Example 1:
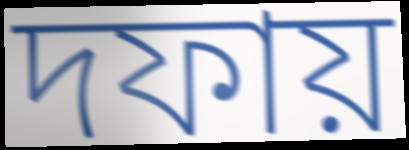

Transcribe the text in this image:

দফায়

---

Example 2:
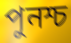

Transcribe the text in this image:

পুনশ্চ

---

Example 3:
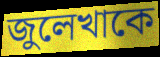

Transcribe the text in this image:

জুলেখাকে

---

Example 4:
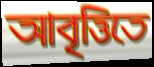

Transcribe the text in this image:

আবৃত্তিতে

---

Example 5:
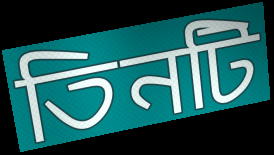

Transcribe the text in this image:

তিনটি